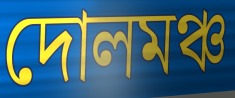
দোলমঞ্চ